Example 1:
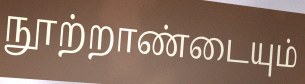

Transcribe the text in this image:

நூற்றாண்டையும்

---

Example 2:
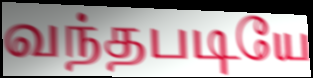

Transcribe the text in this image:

வந்தபடியே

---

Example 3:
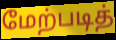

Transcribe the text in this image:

மேற்படித்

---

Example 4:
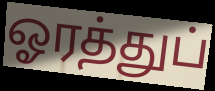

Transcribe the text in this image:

ஓரத்துப்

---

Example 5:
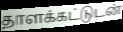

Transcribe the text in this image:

தாளக்கட்டுடன்